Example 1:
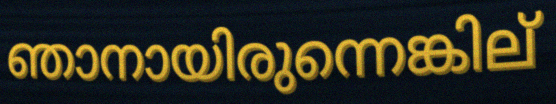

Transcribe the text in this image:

ഞാനായിരുന്നെങ്കില്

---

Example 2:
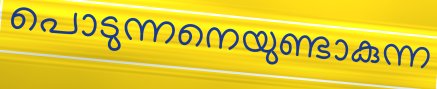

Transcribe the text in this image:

പൊടുന്നനെയുണ്ടാകുന്ന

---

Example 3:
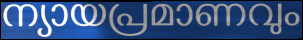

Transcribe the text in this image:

ന്യായപ്രമാണവും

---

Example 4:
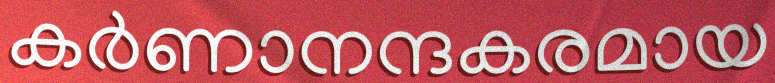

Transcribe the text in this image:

കർണാനന്ദകരമായ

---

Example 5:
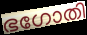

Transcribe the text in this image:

ഭഗോതി